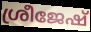
ശ്രീജേഷ്